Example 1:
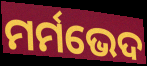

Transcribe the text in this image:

ମର୍ମଭେଦ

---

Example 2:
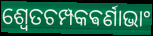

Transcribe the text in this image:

ଶ୍ଵେତଚମ୍ପକଵର୍ଣାଭାଂ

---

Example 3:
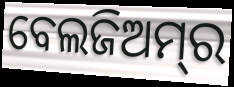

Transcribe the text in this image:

ବେଲଜିଅମ୍‌ର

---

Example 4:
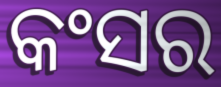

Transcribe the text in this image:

କଂସର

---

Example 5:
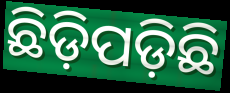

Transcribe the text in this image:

ଛିଡ଼ିପଡ଼ିଛି